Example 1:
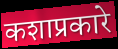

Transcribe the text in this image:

कशाप्रकारे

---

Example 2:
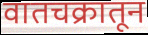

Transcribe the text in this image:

वातचक्रातून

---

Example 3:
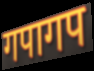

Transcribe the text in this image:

गपागप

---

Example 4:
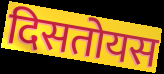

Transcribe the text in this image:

दिसतोयस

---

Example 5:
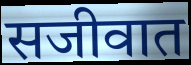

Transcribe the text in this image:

सजीवात